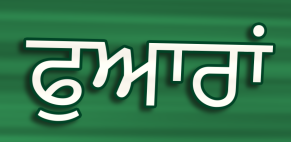
ਫੁਆਰਾਂ